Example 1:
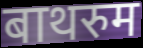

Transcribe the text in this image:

बाथरुम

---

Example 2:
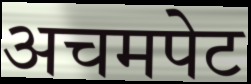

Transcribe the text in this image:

अचमपेट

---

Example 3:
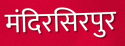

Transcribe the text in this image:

मंदिरसिरपुर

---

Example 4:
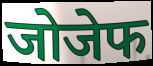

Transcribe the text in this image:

जोजेफ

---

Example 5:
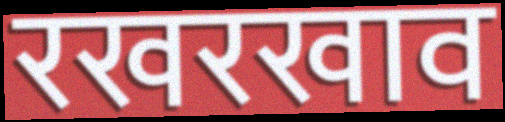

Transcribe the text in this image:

रखरखाव